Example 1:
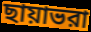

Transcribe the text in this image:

ছায়াভরা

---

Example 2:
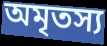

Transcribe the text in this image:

অমৃতস্য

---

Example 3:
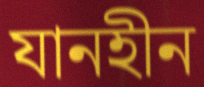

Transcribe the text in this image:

যানহীন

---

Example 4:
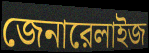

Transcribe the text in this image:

জেনারেলাইজ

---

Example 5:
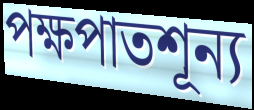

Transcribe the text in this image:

পক্ষপাতশূন্য